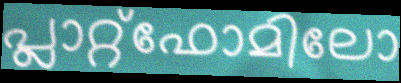
പ്ലാറ്റ്ഫോമിലോ